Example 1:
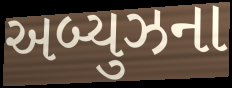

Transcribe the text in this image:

અબ્યુઝના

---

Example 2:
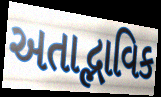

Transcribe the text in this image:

અતાદ્ભાવિક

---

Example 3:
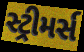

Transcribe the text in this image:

સ્ટ્રીમર્સ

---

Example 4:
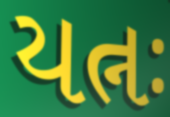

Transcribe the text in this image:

યત્નઃ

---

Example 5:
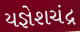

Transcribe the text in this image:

યજ્ઞેશચંદ્ર